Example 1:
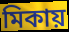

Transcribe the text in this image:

মিকায়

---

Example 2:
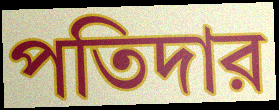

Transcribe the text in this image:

পতিদার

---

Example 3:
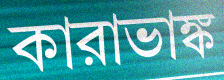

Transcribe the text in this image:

কারাভাঙ্ক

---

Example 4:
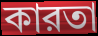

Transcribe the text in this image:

কারতা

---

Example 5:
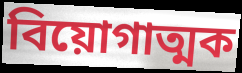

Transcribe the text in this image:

বিয়োগাত্মক